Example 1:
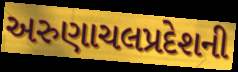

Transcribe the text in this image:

અરુણાચલપ્રદેશની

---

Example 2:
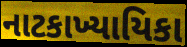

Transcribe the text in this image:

નાટકાખ્યાયિકા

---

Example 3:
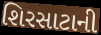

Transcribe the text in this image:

શિરસાટાની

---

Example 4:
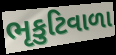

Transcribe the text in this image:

ભૃકુટિવાળા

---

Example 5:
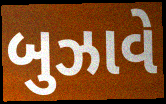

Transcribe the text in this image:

બુઝાવે